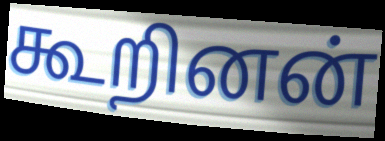
கூறினன்